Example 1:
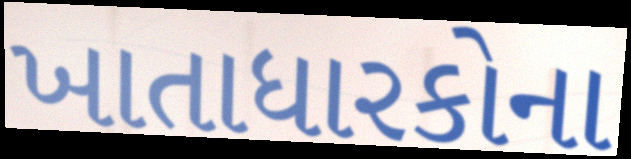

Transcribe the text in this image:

ખાતાધારકોના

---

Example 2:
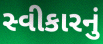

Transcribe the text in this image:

સ્વીકારનું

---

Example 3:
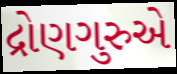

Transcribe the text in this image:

દ્રોણગુરુએ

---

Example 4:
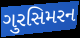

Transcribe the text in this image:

ગુરસિમરન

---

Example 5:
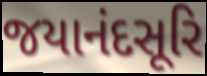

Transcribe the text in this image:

જયાનંદસૂરિ